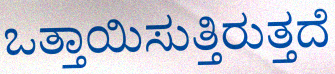
ಒತ್ತಾಯಿಸುತ್ತಿರುತ್ತದೆ